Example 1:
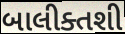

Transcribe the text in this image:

બાલીક્તશી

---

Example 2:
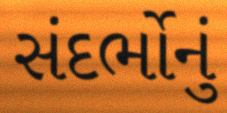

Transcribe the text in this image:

સંદર્ભોનું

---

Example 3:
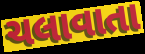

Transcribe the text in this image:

ચલાવાતા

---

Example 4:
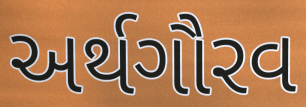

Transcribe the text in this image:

અર્થગૌરવ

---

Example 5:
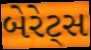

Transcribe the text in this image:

બેરેટ્સ